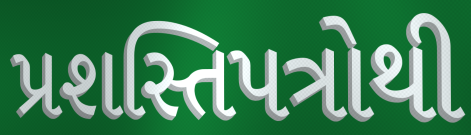
પ્રશસ્તિપત્રોથી